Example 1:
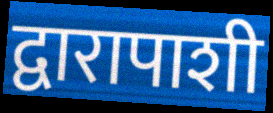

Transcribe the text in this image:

द्वारापाशी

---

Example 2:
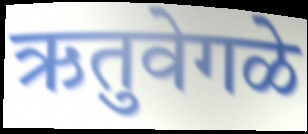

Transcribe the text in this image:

ऋतुवेगळे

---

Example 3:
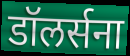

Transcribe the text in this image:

डॉलर्सना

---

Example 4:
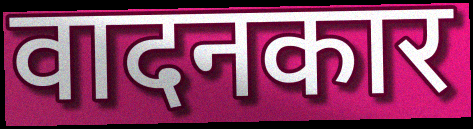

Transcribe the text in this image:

वादनकार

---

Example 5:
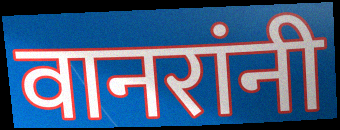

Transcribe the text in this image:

वानरांनी